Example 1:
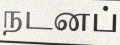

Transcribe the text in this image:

நடனப்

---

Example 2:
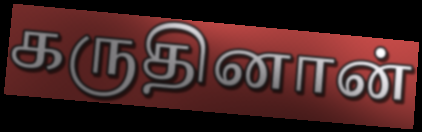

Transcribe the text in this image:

கருதினான்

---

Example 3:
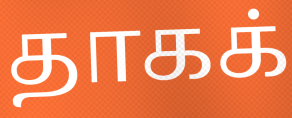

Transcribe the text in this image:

தாகக்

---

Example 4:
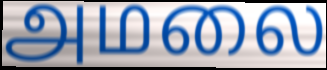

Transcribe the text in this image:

அமலை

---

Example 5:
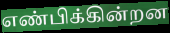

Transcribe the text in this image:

எண்பிக்கின்றன